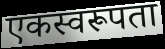
एकस्वरूपता